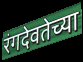
रंगदेवतेच्या